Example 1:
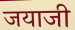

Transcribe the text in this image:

जयाजी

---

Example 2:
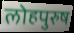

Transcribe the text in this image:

लोहपुरुष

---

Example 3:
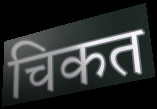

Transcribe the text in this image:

चिकत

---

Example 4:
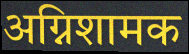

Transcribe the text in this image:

अग्निशामक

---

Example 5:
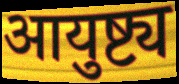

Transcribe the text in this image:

आयुष्ट्य